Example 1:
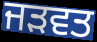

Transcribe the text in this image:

ਜੜਵਤ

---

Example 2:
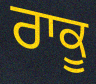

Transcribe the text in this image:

ਰਾਕੂ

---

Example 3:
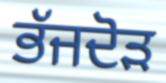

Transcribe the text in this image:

ਭੱਜਦੋੜ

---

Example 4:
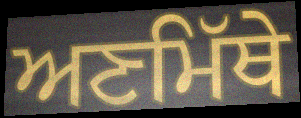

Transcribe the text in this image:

ਅਣਮਿੱਥੇ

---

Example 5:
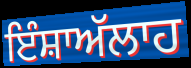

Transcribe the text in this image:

ਇੰਸ਼ਾਅੱਲਾਹ